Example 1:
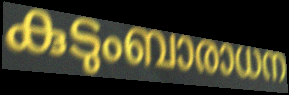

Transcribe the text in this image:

കുടുംബാരാധന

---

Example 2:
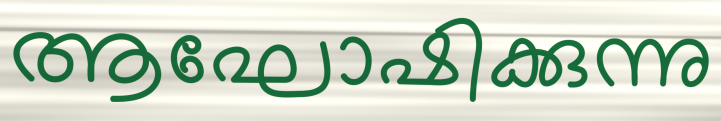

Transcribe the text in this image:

ആഘോഷിക്കുന്നു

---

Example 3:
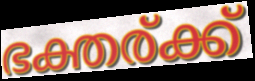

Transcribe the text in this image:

ഭക്തര്ക്ക്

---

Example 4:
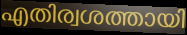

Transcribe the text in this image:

എതിര്വശത്തായി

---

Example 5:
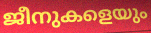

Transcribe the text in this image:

ജീനുകളെയും